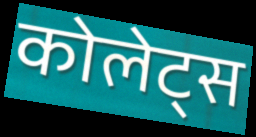
कोलेट्स